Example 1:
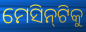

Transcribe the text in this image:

ମେସିନ୍‍ଟିକୁ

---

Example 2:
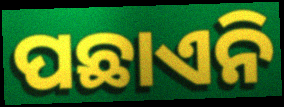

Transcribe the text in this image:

ପଛାଏନି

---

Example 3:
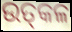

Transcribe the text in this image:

ଉତ୍‌କଳ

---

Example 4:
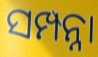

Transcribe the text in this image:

ସମ୍ପନ୍ନା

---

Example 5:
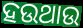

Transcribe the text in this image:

ହଉଥାଉ